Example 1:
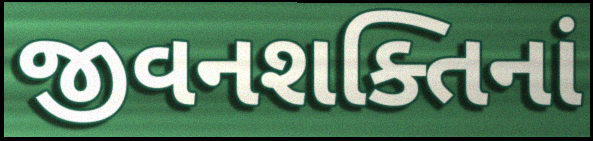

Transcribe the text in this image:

જીવનશક્તિનાં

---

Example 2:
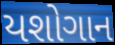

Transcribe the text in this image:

યશોગાન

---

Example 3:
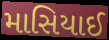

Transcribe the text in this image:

માસિયાઈ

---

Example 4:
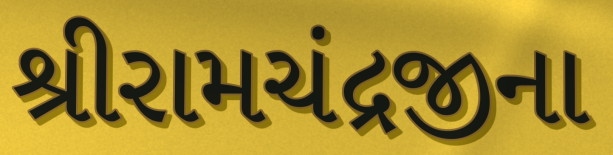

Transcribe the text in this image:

શ્રીરામચંદ્રજીના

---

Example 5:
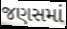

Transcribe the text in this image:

જણસમાં